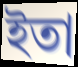
ইতা